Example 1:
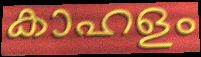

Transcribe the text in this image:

കാഹളം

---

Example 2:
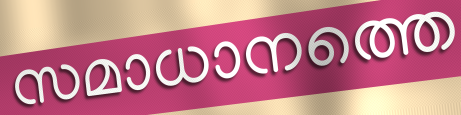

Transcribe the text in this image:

സമാധാനത്തെ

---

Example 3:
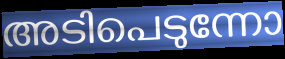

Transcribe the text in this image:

അടിപെടുന്നോ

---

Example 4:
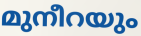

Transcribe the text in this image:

മുനീറയും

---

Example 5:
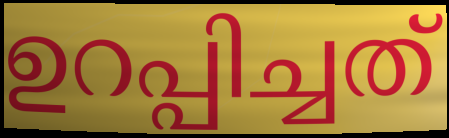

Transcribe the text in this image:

ഉറപ്പിച്ചത്